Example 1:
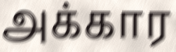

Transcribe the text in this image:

அக்கார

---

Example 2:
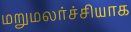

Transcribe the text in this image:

மறுமலர்ச்சியாக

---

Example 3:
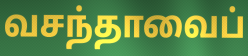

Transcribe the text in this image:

வசந்தாவைப்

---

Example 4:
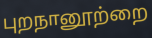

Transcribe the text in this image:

புறநானூற்றை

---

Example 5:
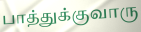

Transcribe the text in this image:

பாத்துக்குவாரு